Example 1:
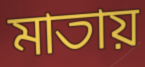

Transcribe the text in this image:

মাতায়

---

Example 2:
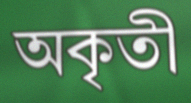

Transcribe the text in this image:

অকৃতী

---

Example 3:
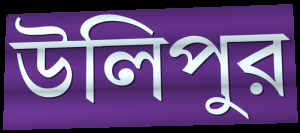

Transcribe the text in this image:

উলিপুর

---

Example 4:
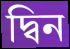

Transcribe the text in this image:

দ্বিন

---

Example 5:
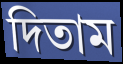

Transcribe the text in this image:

দিতাম